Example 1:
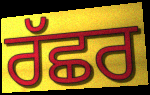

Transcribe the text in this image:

ਰੱਛਰ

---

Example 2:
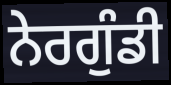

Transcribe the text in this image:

ਨੇਰਗੁੰਡੀ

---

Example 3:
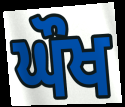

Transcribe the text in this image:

ਘੌਖ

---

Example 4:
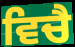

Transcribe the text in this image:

ਵਿਚੈ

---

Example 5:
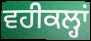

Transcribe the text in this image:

ਵਹੀਕਲ੍ਹਾਂ